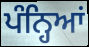
ਪੰਨ੍ਹਿਆਂ